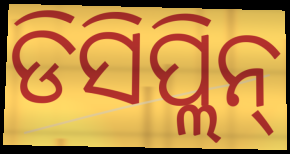
ଡିସିପ୍ଲିନ୍